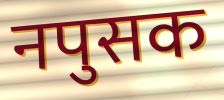
नपुसक